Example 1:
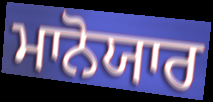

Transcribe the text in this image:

ਮਾਨੋਯਾਰ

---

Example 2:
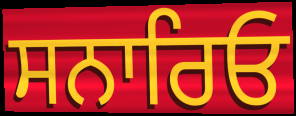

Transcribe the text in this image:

ਸਨਾਰਿਓ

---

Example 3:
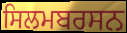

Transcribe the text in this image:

ਸਿਲਮਬਰਸਨ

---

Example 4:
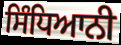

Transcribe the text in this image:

ਸਿੰਧਿਆਨੀ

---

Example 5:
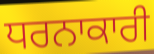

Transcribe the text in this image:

ਧਰਨਾਕਾਰੀ